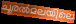
ചൂരൽമലയിലെ